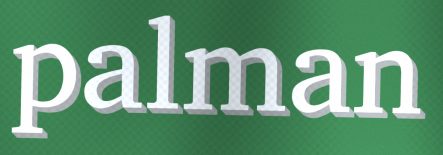
palman